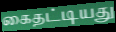
கைதட்டியது